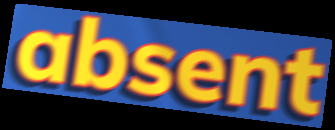
absent